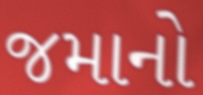
જમાનો